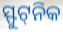
ସ୍ଫୁଟ୍‌ନିକ